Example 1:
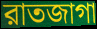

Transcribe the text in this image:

রাতজাগা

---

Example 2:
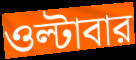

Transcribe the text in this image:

ওল্টাবার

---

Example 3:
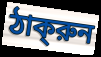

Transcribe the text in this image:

ঠাক্‌রুন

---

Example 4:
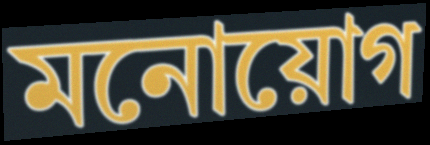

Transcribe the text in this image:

মনোয়োগ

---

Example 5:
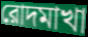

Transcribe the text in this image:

রোদমাখা